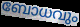
ബോധവും